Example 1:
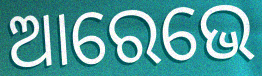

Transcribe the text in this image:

ଆରେଭେ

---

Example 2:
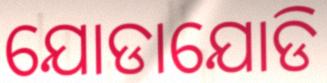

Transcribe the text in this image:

ଯୋଡାଯୋଡି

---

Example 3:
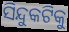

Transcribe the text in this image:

ସିନ୍ଦୁକଟିକୁ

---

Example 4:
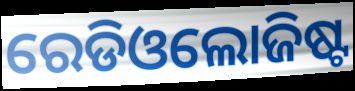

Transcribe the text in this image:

ରେଡିଓଲୋଜିଷ୍ଟ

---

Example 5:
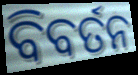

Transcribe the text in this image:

ବିବର୍ତନ